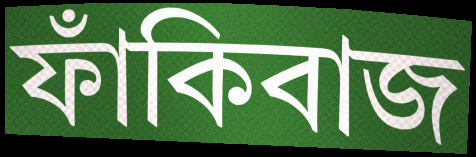
ফাঁকিবাজ